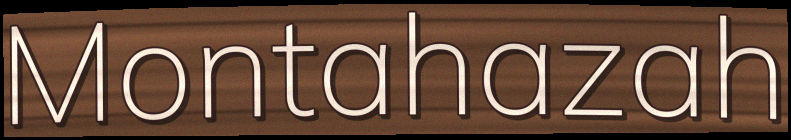
Montahazah